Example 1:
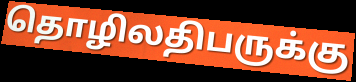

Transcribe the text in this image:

தொழிலதிபருக்கு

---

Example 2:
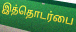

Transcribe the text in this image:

இத்தொடர்பை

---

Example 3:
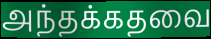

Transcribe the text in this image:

அந்தக்கதவை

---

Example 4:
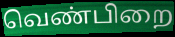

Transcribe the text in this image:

வெண்பிறை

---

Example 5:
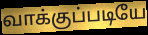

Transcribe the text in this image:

வாக்குப்படியே